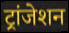
ट्रांजेशन